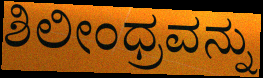
ಶಿಲೀಂಧ್ರವನ್ನು